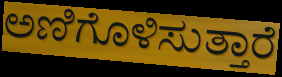
ಅಣಿಗೊಳಿಸುತ್ತಾರೆ